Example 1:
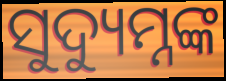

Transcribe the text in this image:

ସୁଦ୍ୟୁମ୍ନଙ୍କ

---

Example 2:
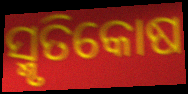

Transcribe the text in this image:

ସ୍ମୃତିକୋଷ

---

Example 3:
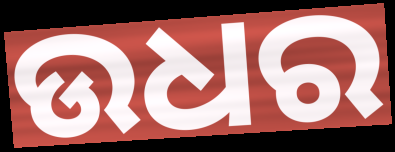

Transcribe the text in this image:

ଉଧର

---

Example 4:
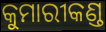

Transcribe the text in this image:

କୁମାରୀକଣ୍ଡ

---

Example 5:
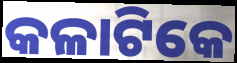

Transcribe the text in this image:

କଳାଟିକେ